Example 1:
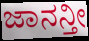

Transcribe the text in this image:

ಜಾನನ್ತೀ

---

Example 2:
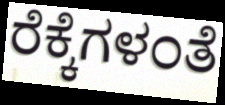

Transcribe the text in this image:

ರೆಕ್ಕೆಗಳಂತೆ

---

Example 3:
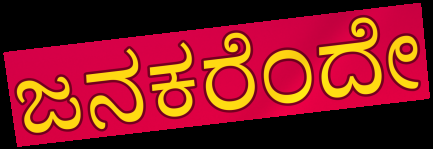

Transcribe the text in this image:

ಜನಕರೆಂದೇ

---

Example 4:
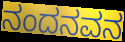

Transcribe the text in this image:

ನಂದನವನ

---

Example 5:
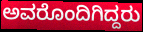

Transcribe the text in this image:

ಅವರೊಂದಿಗಿದ್ದರು